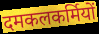
दमकलकर्मियों